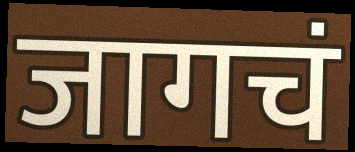
जागचं